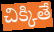
చిక్కితే